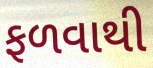
ફળવાથી